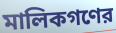
মালিকগণের